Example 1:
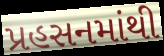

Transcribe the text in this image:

પ્રહસનમાંથી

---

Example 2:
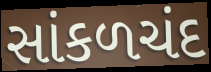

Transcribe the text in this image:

સાંકળચંદ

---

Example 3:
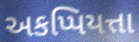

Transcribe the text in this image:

અકપ્પિયત્તા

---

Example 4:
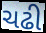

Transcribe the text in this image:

ચઢી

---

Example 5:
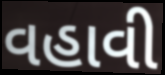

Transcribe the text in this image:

વહાવી